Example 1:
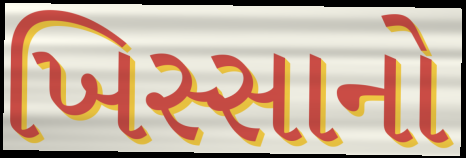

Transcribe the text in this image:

ખિસ્સાનો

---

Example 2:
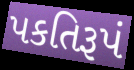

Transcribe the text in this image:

પકતિરૂપં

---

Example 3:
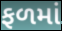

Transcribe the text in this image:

ફળમાં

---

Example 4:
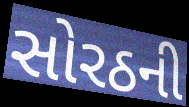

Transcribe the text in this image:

સોરઠની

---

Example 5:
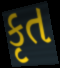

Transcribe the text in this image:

કૃત